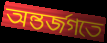
অন্তর্জগতে